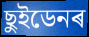
ছুইডেনৰ